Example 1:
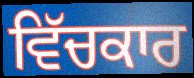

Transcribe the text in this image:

ਵਿੱਚਕਾਰ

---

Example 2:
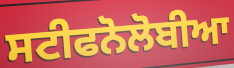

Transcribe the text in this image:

ਸਟੀਫਨੋਲੋਬੀਆ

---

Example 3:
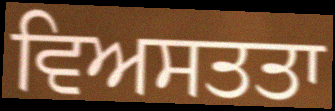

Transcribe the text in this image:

ਵਿਅਸਤਤਾ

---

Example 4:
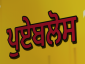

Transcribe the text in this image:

ਪੁਏਬਲੋਸ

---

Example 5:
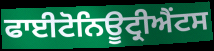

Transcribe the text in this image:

ਫਾਈਟੋਨਿਊਟ੍ਰੀਐਂਟਸ